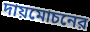
দায়মোচনের